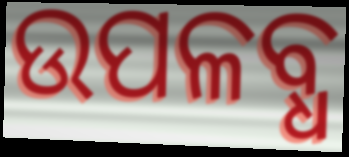
ଉପଳବ୍ଧ